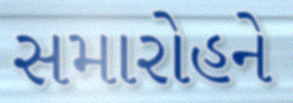
સમારોહને